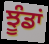
ਝੂੰਡਾਂ